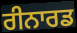
ਰੀਨਾਰਡ